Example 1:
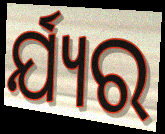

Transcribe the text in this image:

ର୍ଯ୍ୟର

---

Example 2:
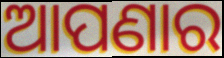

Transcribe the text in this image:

ଆପଣାର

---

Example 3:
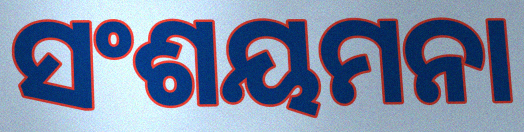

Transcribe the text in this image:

ସଂଶୟମନା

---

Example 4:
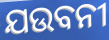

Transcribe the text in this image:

ଯଉବନୀ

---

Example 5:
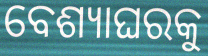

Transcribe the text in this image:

ବେଶ୍ୟାଘରକୁ